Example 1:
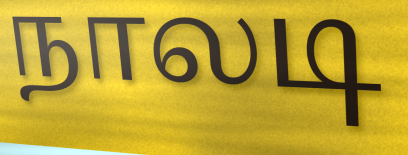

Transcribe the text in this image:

நாலடி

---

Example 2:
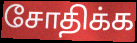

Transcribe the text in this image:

சோதிக்க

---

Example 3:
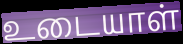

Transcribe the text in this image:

உடையாள்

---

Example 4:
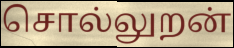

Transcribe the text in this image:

சொல்லுறன்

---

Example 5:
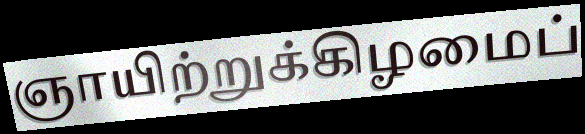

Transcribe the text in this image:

ஞாயிற்றுக்கிழமைப்